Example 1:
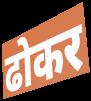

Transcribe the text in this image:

ढोकर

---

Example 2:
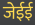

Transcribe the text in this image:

जेईई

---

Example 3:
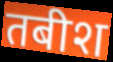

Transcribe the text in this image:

तबीश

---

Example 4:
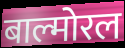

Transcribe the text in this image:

बाल्‍मोरल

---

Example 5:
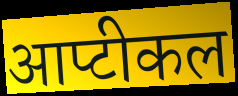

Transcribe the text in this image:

आप्टीकल